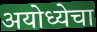
अयोध्येचा